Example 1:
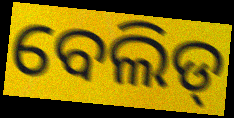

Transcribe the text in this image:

ବେଲିଡ୍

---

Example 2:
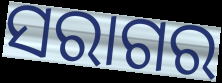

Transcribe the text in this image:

ସରାଗର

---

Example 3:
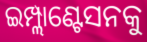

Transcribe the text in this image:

ଇମ୍ପ୍ଲାଣ୍ଟେସନକୁ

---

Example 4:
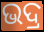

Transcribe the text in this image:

ଭଦ୍ର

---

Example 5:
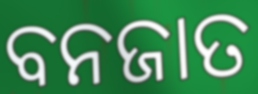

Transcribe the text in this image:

ବନଜାତ